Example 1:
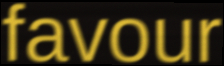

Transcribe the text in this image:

favour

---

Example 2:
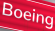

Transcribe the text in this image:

Boeing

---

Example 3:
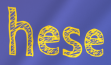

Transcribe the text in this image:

hese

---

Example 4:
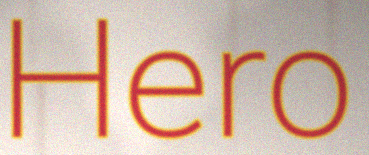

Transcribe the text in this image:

Hero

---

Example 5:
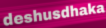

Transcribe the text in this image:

deshusdhaka